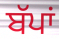
ਬੱਪਾਂ